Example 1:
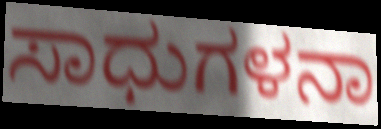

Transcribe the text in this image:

ಸಾಧುಗಳನಾ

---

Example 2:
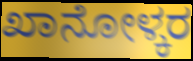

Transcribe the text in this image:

ಖಾನೋಳ್ಕರ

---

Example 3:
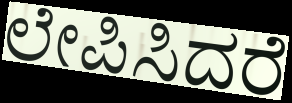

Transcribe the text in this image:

ಲೇಪಿಸಿದರೆ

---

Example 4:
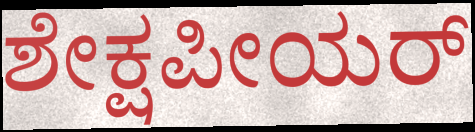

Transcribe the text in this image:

ಶೇಕ್ಷಪೀಯರ್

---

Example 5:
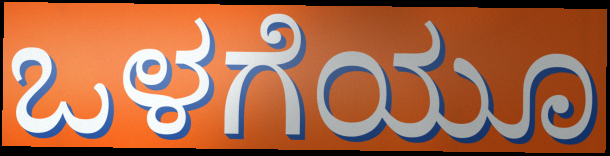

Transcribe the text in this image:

ಒಳಗೆಯೂ